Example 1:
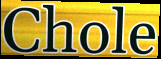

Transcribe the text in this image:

Chole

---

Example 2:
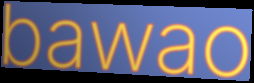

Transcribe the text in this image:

bawao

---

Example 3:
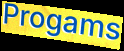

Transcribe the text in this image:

Progams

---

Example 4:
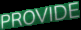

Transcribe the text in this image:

PROVIDE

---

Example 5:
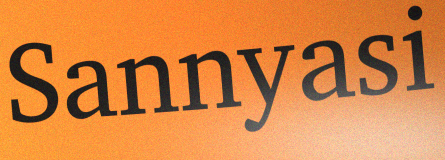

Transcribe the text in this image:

Sannyasi